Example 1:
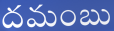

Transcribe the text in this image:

దమంబు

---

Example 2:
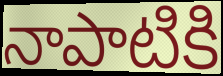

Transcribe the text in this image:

నాపాటికి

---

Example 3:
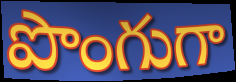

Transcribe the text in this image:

పొంగుగా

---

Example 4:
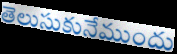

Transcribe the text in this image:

తెలుసుకునేముందు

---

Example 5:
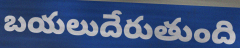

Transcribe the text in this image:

బయలుదేరుతుంది